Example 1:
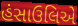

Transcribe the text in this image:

હંસાઉલિએ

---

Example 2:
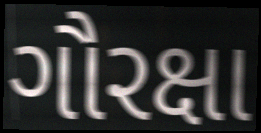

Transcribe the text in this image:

ગૌરક્ષા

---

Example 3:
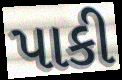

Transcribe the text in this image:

પાકી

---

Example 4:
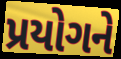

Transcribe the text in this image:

પ્રયોગને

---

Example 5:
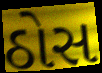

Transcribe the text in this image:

ઠોસ